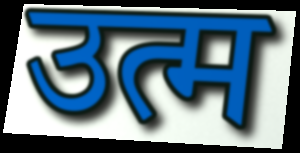
उत्म